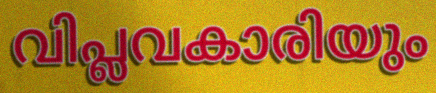
വിപ്ലവകാരിയും